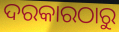
ଦରକାରଠାରୁ